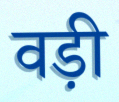
वड़ी